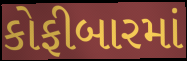
કોફીબારમાં